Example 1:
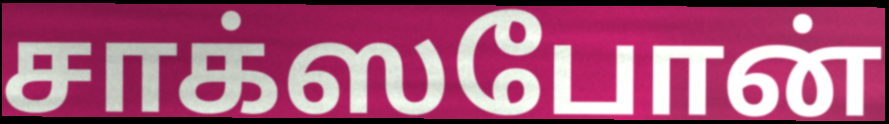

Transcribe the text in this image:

சாக்ஸபோன்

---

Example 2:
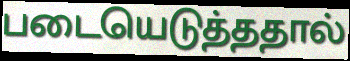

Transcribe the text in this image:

படையெடுத்ததால்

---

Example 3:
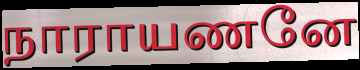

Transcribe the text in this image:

நாராயணனே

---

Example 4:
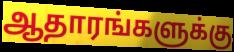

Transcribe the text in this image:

ஆதாரங்களுக்கு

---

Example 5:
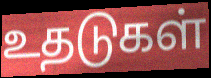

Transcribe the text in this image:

உதடுகள்